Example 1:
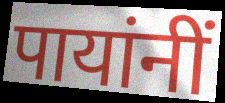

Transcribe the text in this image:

पायांनीं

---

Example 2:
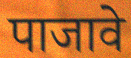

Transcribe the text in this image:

पाजावे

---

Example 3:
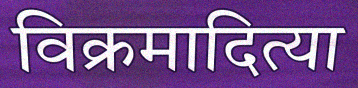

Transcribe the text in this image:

विक्रमादित्या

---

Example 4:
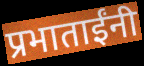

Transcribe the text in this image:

प्रभाताईंनी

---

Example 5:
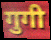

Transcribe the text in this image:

गुगी